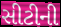
સીટીની